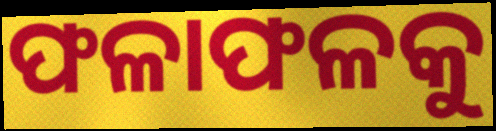
ଫଳାଫଳକୁ